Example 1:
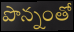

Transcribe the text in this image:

పొన్నంతో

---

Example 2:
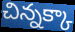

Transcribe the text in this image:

చిన్నక్కా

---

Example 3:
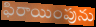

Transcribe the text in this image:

ఫిరాయింపును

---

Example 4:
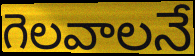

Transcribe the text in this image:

గెలవాలనే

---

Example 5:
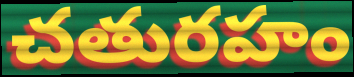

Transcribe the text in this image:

చతురహం